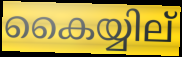
കൈയ്യില്